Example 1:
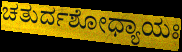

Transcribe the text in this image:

ಚತುರ್ದಶೋಧ್ಯಾಯಃ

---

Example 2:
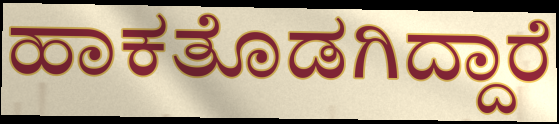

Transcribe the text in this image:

ಹಾಕತೊಡಗಿದ್ದಾರೆ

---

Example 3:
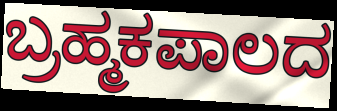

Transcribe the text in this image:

ಬ್ರಹ್ಮಕಪಾಲದ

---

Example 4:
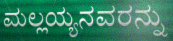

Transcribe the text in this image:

ಮಲ್ಲಯ್ಯನವರನ್ನು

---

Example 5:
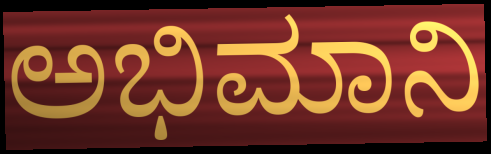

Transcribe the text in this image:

ಅಭಿಮಾನಿ